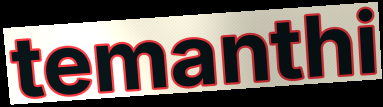
temanthi